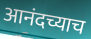
आनंदच्याच